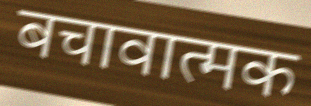
बचावात्मक